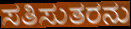
ಸತಿಸುತರನು